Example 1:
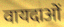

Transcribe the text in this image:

वायदाओं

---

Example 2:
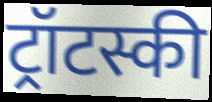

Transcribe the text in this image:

ट्रॉटस्की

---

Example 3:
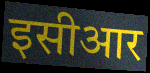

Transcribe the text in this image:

इसीआर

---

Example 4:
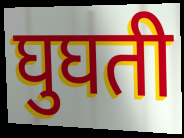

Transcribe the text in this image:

घुघती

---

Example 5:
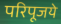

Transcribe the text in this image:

परिपूजये